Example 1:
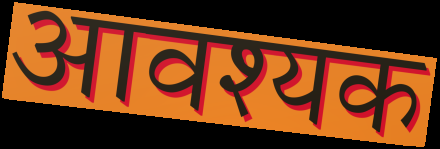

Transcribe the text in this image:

आवश्यक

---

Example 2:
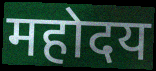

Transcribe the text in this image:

महोदय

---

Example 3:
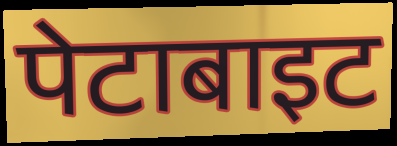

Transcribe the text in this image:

पेटाबाइट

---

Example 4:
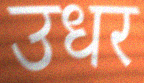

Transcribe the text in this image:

उधर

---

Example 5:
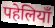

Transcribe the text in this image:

पहेलियाँ